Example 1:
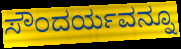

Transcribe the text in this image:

ಸೌಂದರ್ಯವನ್ನೂ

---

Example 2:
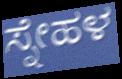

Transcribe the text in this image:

ಸ್ನೇಹಳ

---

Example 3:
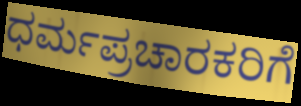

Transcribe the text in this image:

ಧರ್ಮಪ್ರಚಾರಕರಿಗೆ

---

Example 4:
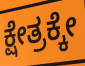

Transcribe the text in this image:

ಕ್ಷೇತ್ರಕ್ಕೇ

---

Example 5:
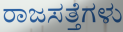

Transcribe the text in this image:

ರಾಜಸತ್ತೆಗಳು